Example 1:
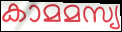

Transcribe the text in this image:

കാമമസ്യ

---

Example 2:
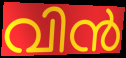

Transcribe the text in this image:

വിൻ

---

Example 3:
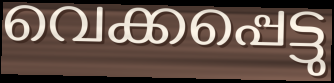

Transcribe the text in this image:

വെക്കപ്പെട്ടു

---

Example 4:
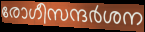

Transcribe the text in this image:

രോഗീസന്ദർശന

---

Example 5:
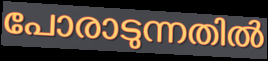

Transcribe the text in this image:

പോരാടുന്നതിൽ